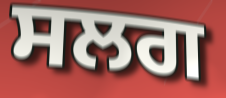
ਸਲਗ